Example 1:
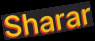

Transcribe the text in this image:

Sharar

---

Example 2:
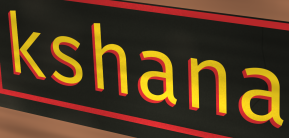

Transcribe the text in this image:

kshana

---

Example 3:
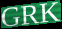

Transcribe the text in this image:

GRK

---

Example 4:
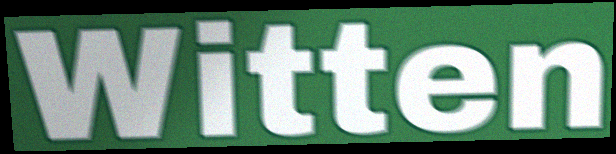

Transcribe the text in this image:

Witten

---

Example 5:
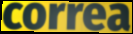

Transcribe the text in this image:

correa